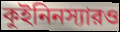
কুইনিনস্যারও